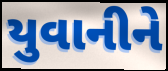
યુવાનીને